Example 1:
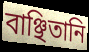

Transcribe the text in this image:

বাঞ্ছিতানি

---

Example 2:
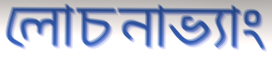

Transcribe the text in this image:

লোচনাভ্যাং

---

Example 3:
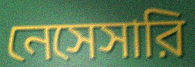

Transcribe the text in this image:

নেসেসারি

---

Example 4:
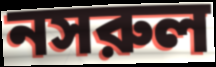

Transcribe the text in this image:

নসরুল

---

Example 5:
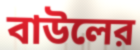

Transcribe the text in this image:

বাউলের